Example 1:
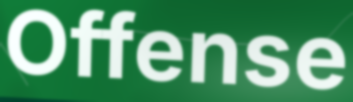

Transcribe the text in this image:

Offense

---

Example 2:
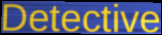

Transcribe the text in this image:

Detective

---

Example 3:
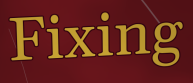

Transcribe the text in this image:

Fixing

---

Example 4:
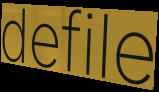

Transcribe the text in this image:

defile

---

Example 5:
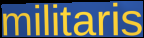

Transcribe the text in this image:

militaris